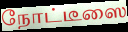
நோட்டீஸை